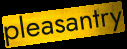
pleasantry